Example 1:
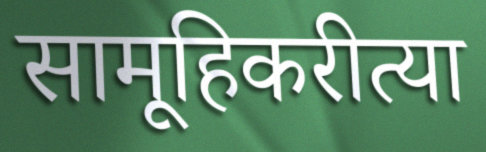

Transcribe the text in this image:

सामूहिकरीत्या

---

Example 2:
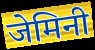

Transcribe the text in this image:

जेमिनी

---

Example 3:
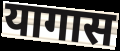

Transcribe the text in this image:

यागास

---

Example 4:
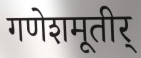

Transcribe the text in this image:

गणेशमूतीर्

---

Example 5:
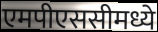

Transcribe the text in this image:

एमपीएससीमध्ये